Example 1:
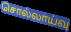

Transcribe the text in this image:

சொல்லாய்வு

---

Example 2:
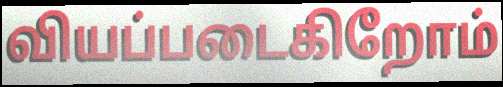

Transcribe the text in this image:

வியப்படைகிறோம்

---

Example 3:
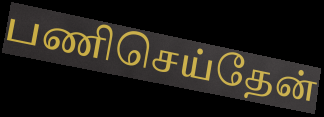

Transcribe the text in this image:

பணிசெய்தேன்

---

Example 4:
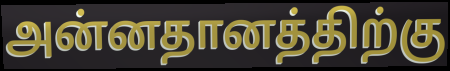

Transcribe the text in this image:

அன்னதானத்திற்கு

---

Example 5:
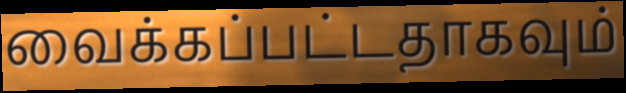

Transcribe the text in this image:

வைக்கப்பட்டதாகவும்